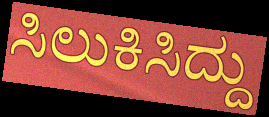
ಸಿಲುಕಿಸಿದ್ದು